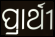
ପ୍ରାର୍ଥୀ